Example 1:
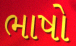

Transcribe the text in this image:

ભાષો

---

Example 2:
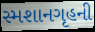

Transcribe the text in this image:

સ્મશાનગૃહની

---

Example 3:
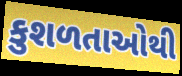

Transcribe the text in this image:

કુશળતાઓથી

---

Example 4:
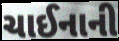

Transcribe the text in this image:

ચાઈનાની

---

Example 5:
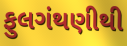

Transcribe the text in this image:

ફુલગંથણીથી